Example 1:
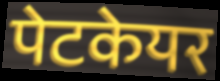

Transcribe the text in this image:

पेटकेयर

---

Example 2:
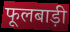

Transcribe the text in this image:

फूलबाड़ी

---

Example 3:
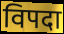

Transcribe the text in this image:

विपदा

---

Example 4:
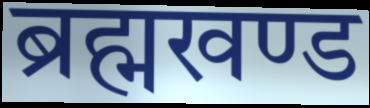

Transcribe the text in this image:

ब्रह्मखण्ड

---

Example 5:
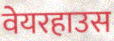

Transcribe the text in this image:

वेयरहाउस